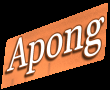
Apong